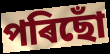
পৰিছোঁ